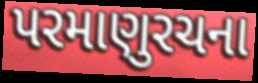
પરમાણુરચના